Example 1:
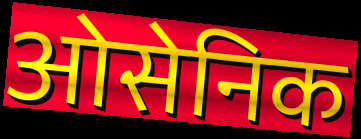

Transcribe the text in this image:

ओसेनिक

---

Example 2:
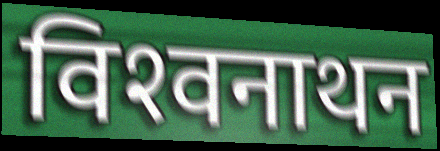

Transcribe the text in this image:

विश्वनाथन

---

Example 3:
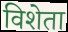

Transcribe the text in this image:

विशेता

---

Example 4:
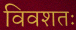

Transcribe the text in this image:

विवशतः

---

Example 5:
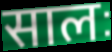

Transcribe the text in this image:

सालः